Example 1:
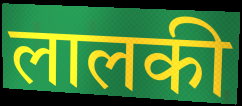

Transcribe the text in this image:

लालकी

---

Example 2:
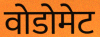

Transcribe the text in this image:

वोडोमेट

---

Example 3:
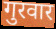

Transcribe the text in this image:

गुरवार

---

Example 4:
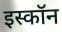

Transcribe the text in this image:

इस्कॉन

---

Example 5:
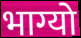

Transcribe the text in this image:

भाग्यो